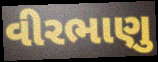
વીરભાણુ